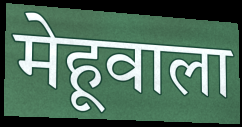
मेहूवाला